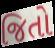
જિતો